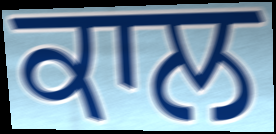
ਕਾਲ